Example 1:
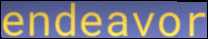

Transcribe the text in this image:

endeavor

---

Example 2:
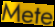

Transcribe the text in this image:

Mete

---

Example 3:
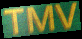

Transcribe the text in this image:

TMV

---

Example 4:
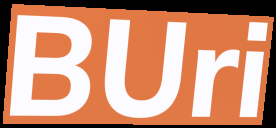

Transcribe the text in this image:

BUri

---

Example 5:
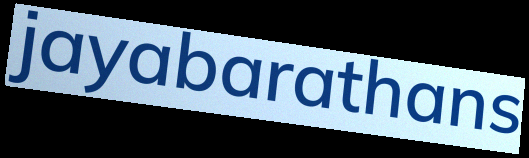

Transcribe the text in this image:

jayabarathans